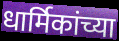
धार्मिकांच्या